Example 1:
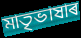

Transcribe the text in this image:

মাতৃভাষাৰ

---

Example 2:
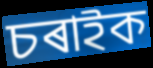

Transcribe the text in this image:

চৰাইক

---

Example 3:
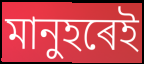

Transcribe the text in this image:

মানুহৰেই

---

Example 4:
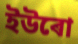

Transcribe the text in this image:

ইউৰো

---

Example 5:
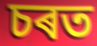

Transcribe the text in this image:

চৰত